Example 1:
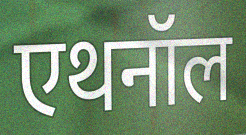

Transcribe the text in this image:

एथनॉल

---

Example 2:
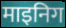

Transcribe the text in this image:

माइनिग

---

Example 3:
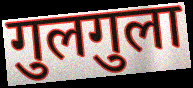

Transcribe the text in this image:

गुलगुला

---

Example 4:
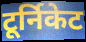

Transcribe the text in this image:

टूर्निकेट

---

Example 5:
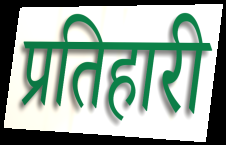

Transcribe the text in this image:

प्रतिहारी